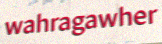
wahragawher